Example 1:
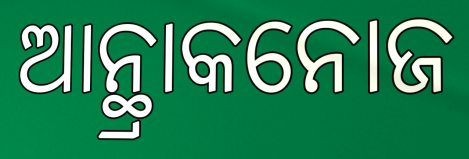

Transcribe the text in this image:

ଆନ୍ଥ୍ରାକନୋଜ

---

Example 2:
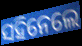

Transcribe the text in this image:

ସହିନେଲେ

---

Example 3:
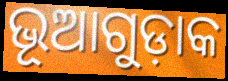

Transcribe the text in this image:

ଭୂଆଗୁଡ଼ାକ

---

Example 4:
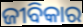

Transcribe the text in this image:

ଜୀବିକାର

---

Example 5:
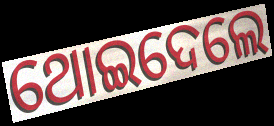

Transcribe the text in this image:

ଥୋଇଦେଲେ